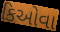
કિઓવા